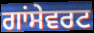
ਗਾਂਸੇਵਰਟ